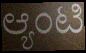
ಆ್ಯಂಟಿ